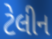
ટેલીન